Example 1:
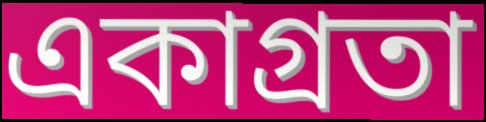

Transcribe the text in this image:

একাগ্ৰতা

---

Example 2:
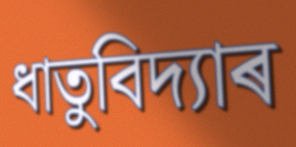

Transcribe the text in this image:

ধাতুবিদ্যাৰ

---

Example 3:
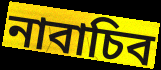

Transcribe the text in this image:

নাবাচিব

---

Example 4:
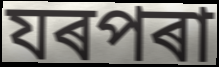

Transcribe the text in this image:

যৰপৰা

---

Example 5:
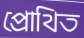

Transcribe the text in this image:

প্ৰোথিত